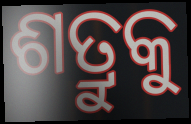
ଶତ୍ରୁକୁ